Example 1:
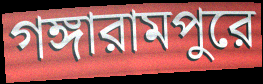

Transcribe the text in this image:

গঙ্গারামপুরে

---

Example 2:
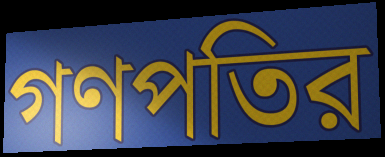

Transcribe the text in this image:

গণপতির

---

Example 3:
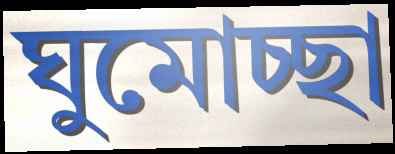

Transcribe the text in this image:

ঘুমোচ্ছা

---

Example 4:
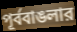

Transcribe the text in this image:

পূর্ববাঙলার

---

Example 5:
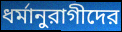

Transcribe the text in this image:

ধর্মানুরাগীদের